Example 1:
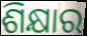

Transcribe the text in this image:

ଶିକ୍ଷାର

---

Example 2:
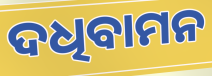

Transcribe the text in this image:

ଦଧିବାମନ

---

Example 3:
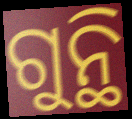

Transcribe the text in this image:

ଗୁନ୍ଥି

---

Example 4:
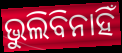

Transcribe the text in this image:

ଭୁଲିବିନାହିଁ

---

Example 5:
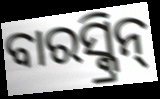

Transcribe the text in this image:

ବାରସ୍କ୍ରିନ୍